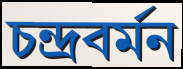
চন্দ্রবর্মন